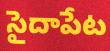
సైదాపేట